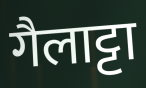
गैलाट्टा